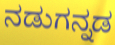
ನಡುಗನ್ನಡ